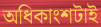
অধিকাংশটাই